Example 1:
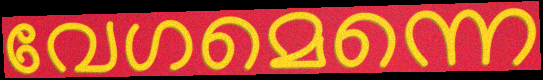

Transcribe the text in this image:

വേഗമെന്നെ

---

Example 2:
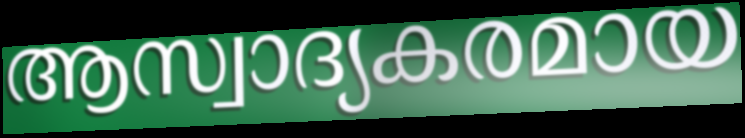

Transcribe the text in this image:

ആസ്വാദ്യകരമായ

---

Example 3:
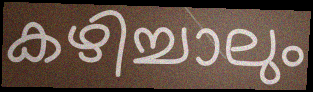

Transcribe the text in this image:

കഴിച്ചാലും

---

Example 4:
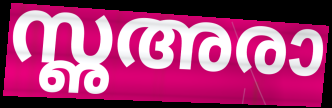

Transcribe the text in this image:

സൢഅരാ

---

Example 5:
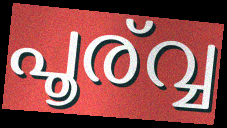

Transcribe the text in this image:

പൂര്വ്വ